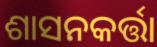
ଶାସନକର୍ତ୍ତା